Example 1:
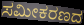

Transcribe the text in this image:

ಸಮೀಕರಣದ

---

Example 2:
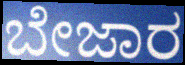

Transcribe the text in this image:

ಬೇಜಾರ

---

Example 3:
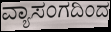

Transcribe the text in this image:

ವ್ಯಾಸಂಗದಿಂದ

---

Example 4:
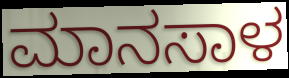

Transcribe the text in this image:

ಮಾನಸಾಳ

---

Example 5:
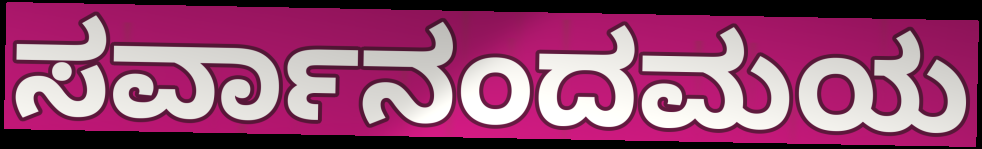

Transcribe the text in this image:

ಸರ್ವಾನಂದಮಯ